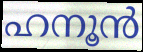
ഹനൂൻ